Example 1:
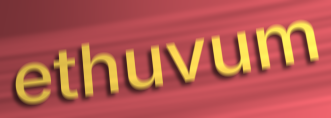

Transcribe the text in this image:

ethuvum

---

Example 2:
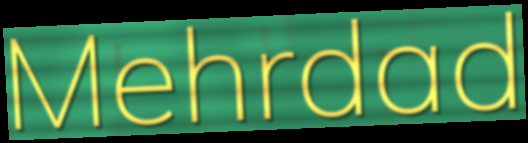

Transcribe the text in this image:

Mehrdad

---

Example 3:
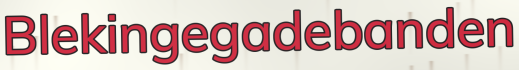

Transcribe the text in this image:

Blekingegadebanden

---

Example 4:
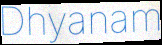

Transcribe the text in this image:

Dhyanam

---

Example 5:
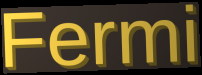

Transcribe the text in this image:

Fermi